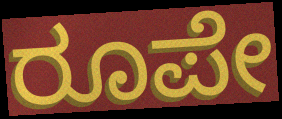
ರೂಪೇ